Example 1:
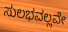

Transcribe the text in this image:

ಸುಲಭವಲ್ಲವೇ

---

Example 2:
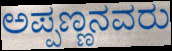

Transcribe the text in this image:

ಅಪ್ಪಣ್ಣನವರು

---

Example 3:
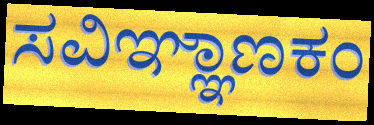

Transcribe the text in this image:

ಸವಿಞ್ಞಾಣಕಂ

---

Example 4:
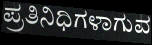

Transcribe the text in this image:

ಪ್ರತಿನಿಧಿಗಳಾಗುವ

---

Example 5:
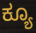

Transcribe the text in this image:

ಕ್ಯೂ